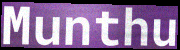
Munthu